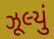
ઝૂલ્યું